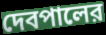
দেবপালের